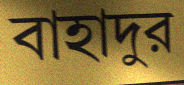
বাহাদুর